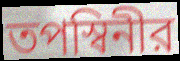
তপস্বিনীর